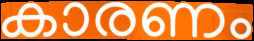
കാരണം